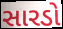
સારડો